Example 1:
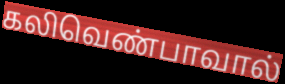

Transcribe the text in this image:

கலிவெண்பாவால்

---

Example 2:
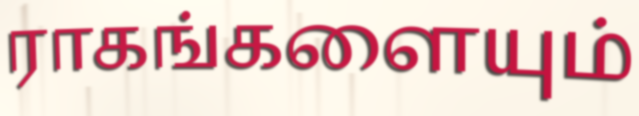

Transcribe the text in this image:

ராகங்களையும்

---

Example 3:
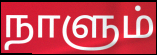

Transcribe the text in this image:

நாளும்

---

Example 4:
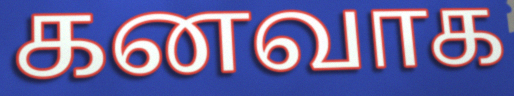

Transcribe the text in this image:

கனவாக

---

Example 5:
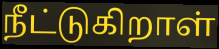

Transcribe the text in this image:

நீட்டுகிறாள்